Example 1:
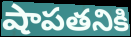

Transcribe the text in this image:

షాపతనికి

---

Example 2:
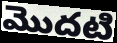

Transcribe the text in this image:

మొదటి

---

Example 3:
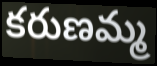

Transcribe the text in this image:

కరుణమ్మ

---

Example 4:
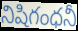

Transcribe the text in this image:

నిషిగంధనీ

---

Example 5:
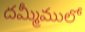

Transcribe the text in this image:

దమ్మీములో